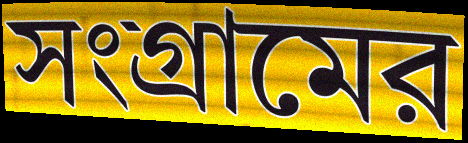
সংগ্রামের